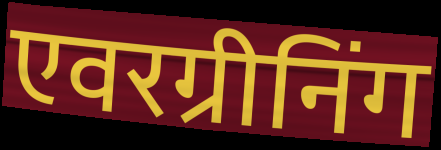
एवरग्रीनिंग